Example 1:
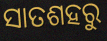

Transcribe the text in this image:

ସାତଶହରୁ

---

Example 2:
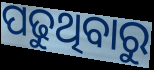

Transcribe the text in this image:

ପଢୁଥିବାରୁ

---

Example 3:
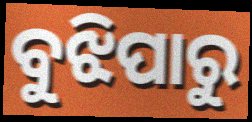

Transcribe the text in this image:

ବୁଝିପାରୁ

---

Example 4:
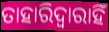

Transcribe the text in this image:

ତାହାରିଦ୍ୱାରାହିଁ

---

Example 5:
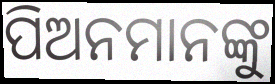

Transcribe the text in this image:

ପିଅନମାନଙ୍କୁ